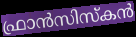
ഫ്രാൻസിസ്കൻ